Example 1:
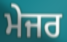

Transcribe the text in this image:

ਮੇਜਰ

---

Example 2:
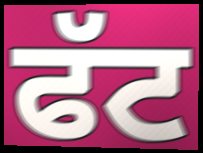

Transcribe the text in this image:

ਫੱਟ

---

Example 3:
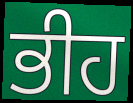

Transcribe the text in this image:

ਭੀਹ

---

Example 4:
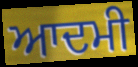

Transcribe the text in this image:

ਆਦਮੀ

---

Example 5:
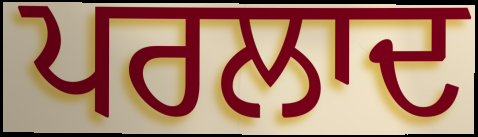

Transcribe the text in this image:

ਪਰਲਾਦ